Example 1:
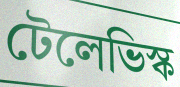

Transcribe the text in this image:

টেলেভিস্ক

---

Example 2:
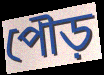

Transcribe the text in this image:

পৌড়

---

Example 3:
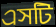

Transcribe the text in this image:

এসটি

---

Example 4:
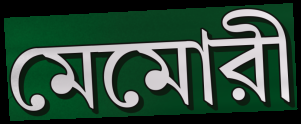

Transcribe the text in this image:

মেমোরী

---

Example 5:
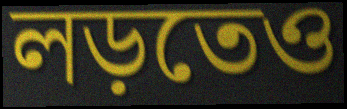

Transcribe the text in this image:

লড়তেও